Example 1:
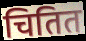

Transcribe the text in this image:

चितित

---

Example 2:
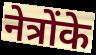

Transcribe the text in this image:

नेत्रोंके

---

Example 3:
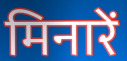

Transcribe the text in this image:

मिनारें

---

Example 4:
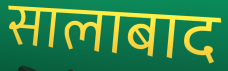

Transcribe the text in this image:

सालाबाद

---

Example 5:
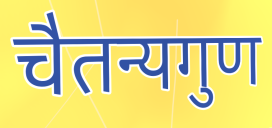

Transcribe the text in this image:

चैतन्यगुण